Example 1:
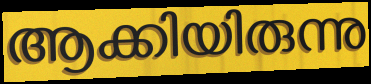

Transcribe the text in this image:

ആക്കിയിരുന്നു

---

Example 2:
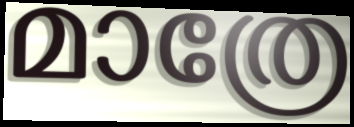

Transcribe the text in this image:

മാത്രേ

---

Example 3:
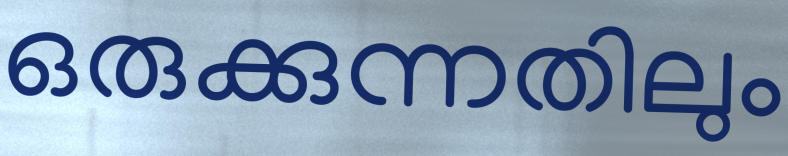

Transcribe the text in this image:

ഒരുക്കുന്നതിലും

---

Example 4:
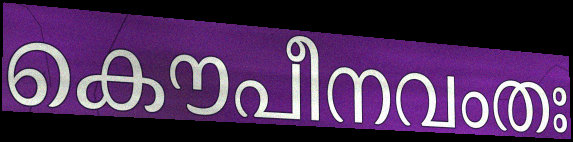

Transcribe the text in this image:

കൌപീനവംതഃ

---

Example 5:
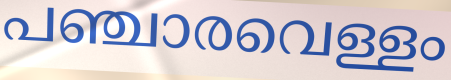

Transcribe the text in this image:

പഞ്ചാരവെള്ളം